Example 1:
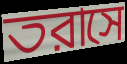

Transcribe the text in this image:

তরাসে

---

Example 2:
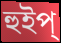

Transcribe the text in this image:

হুইপ্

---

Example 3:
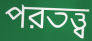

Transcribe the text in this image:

পরতত্ত্ব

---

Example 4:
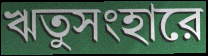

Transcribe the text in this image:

ঋতুসংহারে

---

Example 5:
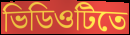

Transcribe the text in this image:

ভিডিওটিতে